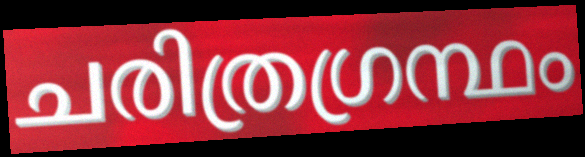
ചരിത്രഗ്രന്ഥം